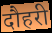
दौहरी